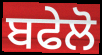
ਬਫੇਲੋ